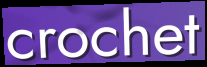
crochet